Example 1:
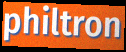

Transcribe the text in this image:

philtron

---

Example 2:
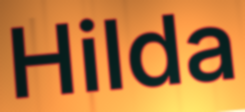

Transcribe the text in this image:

Hilda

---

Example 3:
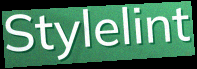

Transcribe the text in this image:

Stylelint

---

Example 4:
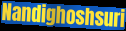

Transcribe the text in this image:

Nandighoshsuri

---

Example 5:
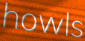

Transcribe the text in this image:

howls